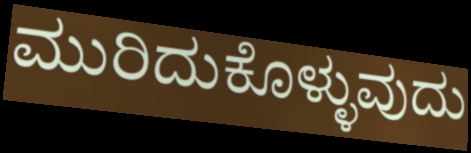
ಮುರಿದುಕೊಳ್ಳುವುದು